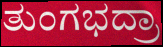
ತುಂಗಭದ್ರಾ